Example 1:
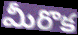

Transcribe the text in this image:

మీరొక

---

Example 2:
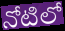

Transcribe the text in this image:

నోటిలో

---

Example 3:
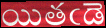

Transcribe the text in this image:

యితఁడె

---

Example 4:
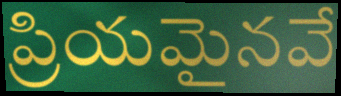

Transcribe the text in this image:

ప్రియమైనవే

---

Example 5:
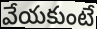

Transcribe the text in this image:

వేయకుంటే